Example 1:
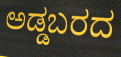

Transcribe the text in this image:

ಅಡ್ಡಬರದ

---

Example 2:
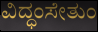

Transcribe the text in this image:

ವಿದ್ಧಂಸೇತುಂ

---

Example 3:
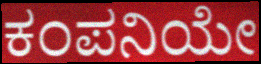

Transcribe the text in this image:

ಕಂಪನಿಯೇ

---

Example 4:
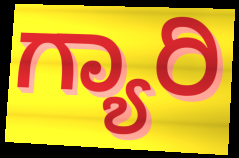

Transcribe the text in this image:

ಗ್ಯಾರಿ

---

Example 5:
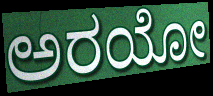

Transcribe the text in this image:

ಅರಯೋ